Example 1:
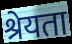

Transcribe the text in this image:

श्रेयता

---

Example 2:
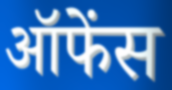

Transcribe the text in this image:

ऑफेंस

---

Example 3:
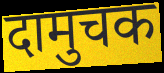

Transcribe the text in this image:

दामुचक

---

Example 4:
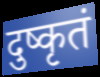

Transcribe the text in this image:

दुष्कृतं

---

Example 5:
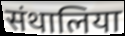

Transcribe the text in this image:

संथालिया